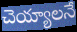
చెయ్యాలనే